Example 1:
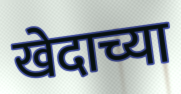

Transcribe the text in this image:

खेदाच्या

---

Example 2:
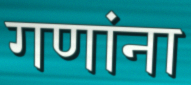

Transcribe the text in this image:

गणांना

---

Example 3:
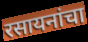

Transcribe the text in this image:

रसायनांचा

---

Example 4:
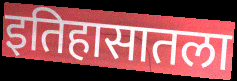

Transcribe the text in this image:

इतिहासातला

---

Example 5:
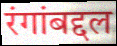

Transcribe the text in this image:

रंगांबद्दल